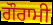
ਗੌਰਾਮੀ